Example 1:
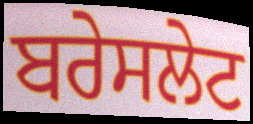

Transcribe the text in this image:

ਬਰੇਸਲੇਟ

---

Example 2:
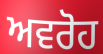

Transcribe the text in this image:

ਅਵਰੋਹ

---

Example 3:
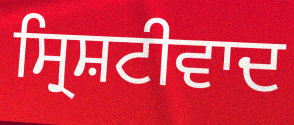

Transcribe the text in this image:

ਸ੍ਰਿਸ਼ਟੀਵਾਦ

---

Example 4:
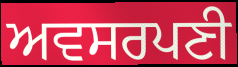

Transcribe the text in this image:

ਅਵਸਰਪਣੀ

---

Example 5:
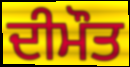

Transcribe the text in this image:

ਦੀਮੌਤ